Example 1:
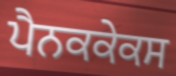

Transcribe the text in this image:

ਪੈਨਕਕੇਕਸ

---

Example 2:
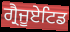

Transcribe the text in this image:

ਗ੍ਰੈਜੂਏਟਿਡ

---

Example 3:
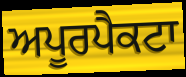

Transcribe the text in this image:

ਅਪੂਰਪੈਕਟਾ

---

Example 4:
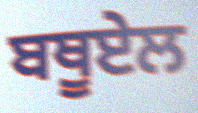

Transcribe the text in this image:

ਬਥੂਏਲ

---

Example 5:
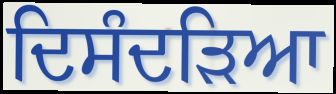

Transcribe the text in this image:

ਦਿਸੰਦੜਿਆ